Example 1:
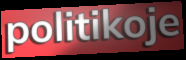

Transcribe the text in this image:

politikoje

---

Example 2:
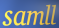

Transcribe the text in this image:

samll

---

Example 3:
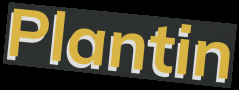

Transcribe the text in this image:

Plantin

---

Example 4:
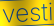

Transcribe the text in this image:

vesti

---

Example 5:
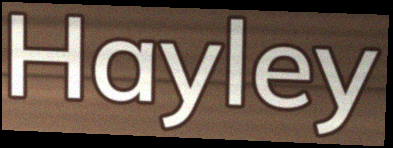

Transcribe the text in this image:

Hayley